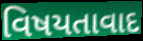
વિષયતાવાદ